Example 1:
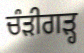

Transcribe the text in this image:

ਚੰੜੀਗੜ੍ਹ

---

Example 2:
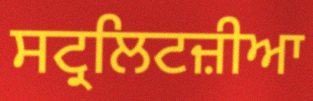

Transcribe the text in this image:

ਸਟ੍ਰਲਿਟਜ਼ੀਆ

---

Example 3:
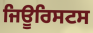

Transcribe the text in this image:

ਜਿਊਰਿਸਟਸ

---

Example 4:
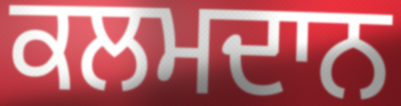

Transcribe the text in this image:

ਕਲਮਦਾਨ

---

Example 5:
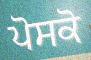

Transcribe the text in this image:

ਪੋਸਕੋ